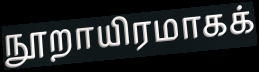
நூறாயிரமாகக்